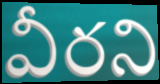
వీరని